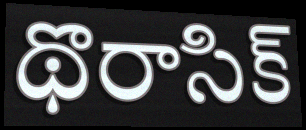
థొరాసిక్